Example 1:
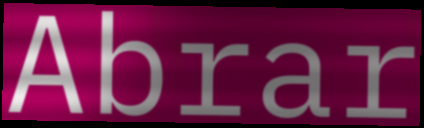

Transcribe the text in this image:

Abrar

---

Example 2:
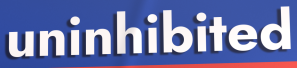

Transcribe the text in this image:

uninhibited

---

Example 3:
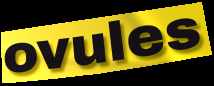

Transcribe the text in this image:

ovules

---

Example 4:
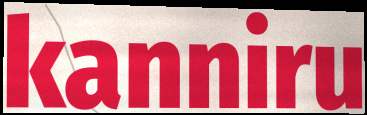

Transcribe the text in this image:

kanniru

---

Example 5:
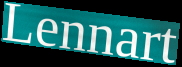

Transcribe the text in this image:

Lennart